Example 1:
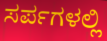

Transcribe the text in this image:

ಸರ್ಪಗಳಲ್ಲಿ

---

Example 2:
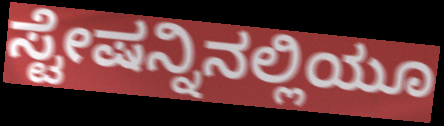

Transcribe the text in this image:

ಸ್ಟೇಷನ್ನಿನಲ್ಲಿಯೂ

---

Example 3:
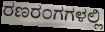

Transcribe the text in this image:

ರಣರಂಗಗಳಲ್ಲಿ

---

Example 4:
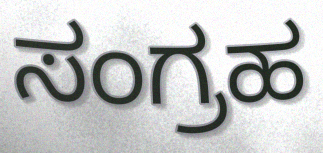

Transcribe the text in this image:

ಸಂಗ್ರಹ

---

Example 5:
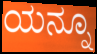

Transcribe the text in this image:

ಯನ್ನೂ